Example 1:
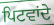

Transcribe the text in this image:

ਪਿਟਵਾਂਦੇ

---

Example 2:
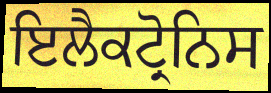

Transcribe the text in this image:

ਇਲੈਕਟ੍ਰੋਨਿਸ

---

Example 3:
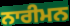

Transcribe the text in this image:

ਨਾਰੀਮਨ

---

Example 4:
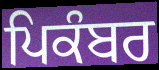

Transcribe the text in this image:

ਪਿਕੰਬਰ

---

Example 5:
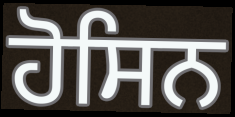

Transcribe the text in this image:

ਹੋਸਿਨ